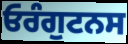
ਓਰੰਗੁਟਨਸ